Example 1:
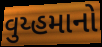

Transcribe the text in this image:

વુય્હમાનો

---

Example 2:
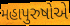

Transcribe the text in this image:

મહાપુરુષોએ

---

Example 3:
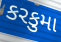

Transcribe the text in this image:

કરકુમા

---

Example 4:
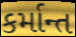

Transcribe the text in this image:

કર્માન્ત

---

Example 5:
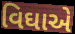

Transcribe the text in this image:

વિઘાએ